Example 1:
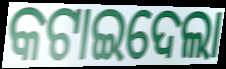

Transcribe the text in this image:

କଟାଇଦେଲା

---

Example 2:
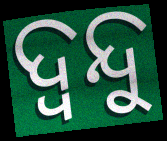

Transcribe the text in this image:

ଦ୍ଵନ୍ଦୁ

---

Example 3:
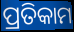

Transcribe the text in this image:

ପ୍ରତିକାମ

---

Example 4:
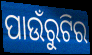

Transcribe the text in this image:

ପାଉଁରୁଟିର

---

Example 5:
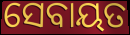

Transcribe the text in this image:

ସେବାୟତ